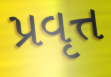
પ્રવૃત્ત